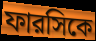
ফারসিকে